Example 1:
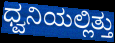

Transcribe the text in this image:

ಧ್ವನಿಯಲ್ಲಿತ್ತು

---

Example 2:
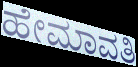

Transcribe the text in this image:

ಹೇಮಾವತಿ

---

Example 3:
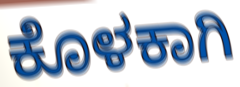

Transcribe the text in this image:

ಕೊಳಕಾಗಿ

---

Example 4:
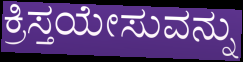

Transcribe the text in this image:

ಕ್ರಿಸ್ತಯೇಸುವನ್ನು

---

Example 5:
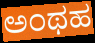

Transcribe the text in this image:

ಅಂಥಹ